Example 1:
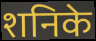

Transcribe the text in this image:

शनिके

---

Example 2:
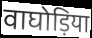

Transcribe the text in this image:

वाघोड़िया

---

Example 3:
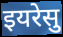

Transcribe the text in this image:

इयरेसु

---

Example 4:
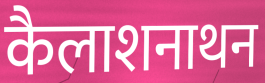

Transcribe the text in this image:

कैलाशनाथन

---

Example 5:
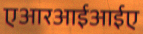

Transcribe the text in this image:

एआरआईआईए